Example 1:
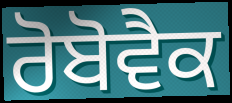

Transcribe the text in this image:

ਰੋਬੋਵੈਕ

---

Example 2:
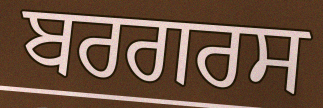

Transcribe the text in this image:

ਬਰਗਰਸ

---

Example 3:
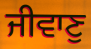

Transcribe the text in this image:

ਜੀਵਾਣੁ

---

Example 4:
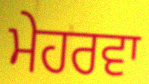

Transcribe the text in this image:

ਮੇਹਰਵਾ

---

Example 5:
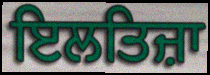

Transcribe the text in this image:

ਇਲਤਿਜ਼ਾ